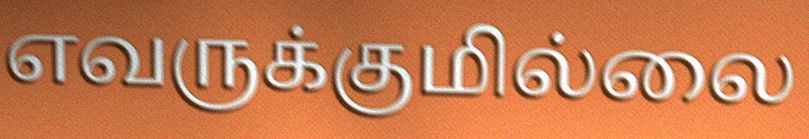
எவருக்குமில்லை